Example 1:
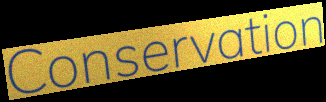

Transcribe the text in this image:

Conservation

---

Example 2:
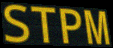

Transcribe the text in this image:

STPM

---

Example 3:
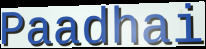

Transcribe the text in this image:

Paadhai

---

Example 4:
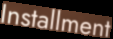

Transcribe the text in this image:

Installment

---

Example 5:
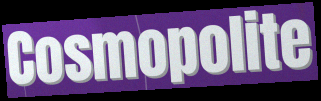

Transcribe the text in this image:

Cosmopolite